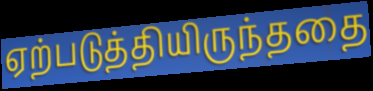
ஏற்படுத்தியிருந்ததை